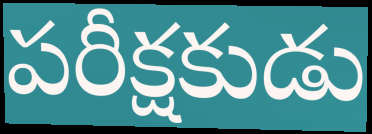
పరీక్షకుడు